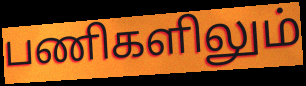
பணிகளிலும்